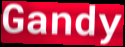
Gandy